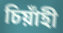
চিয়াঁহী